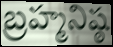
బ్రహ్మనిష్ఠ